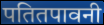
पतितपावनी